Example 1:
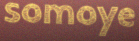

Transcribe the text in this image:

somoye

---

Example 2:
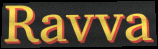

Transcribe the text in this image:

Ravva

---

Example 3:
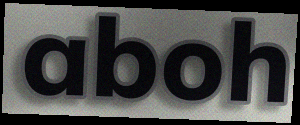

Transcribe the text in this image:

aboh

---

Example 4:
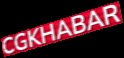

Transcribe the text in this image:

CGKHABAR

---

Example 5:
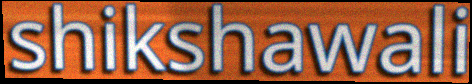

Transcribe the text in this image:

shikshawali